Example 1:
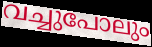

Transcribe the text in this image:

വച്ചുപോലും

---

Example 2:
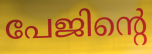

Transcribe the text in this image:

പേജിന്റെ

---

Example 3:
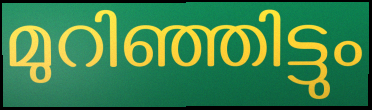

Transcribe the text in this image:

മുറിഞ്ഞിട്ടും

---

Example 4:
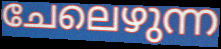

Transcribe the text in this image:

ചേലെഴുന്ന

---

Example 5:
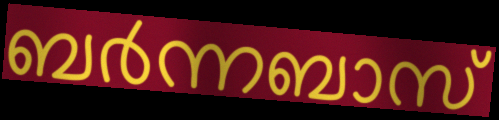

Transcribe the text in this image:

ബർന്നബാസ്